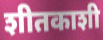
शीतकाशी